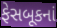
ફેસબૂકનાં